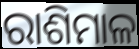
ରାଶିମାଳ